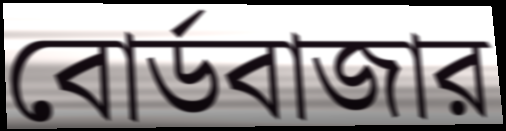
বোর্ডবাজার